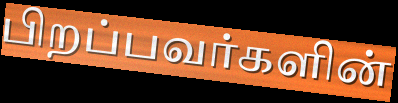
பிறப்பவர்களின்